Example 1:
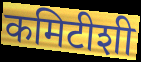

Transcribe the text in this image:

कमिटीशी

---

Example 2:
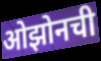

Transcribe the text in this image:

ओझोनची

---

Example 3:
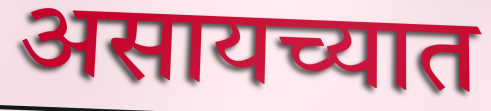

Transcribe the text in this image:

असायच्यात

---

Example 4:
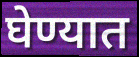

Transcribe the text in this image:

घेण्यात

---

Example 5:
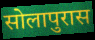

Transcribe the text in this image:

सोलापुरास